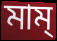
মাম্